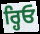
ਰ੍ਹਿਓ